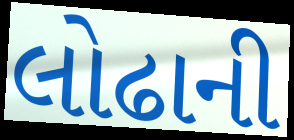
લોઢાની